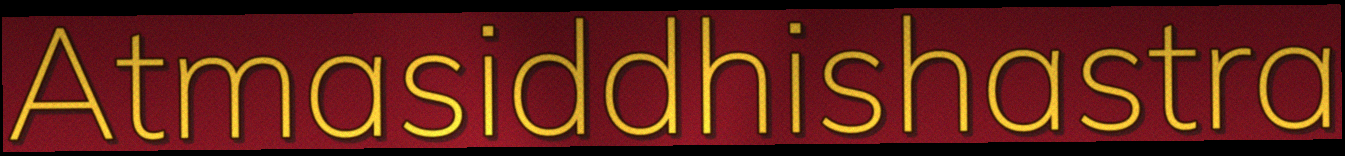
Atmasiddhishastra